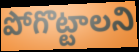
పోగొట్టాలని